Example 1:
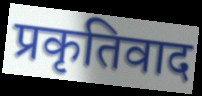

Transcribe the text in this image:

प्रकृतिवाद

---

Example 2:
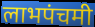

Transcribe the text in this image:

लाभपंचमी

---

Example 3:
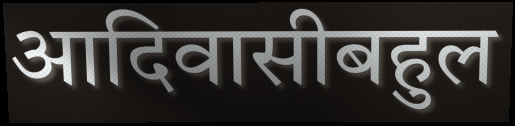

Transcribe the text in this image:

आदिवासीबहुल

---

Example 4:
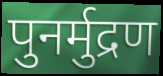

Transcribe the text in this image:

पुनर्मुद्रण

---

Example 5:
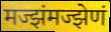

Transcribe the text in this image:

मज्झंमज्झेणं